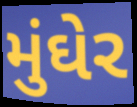
મુંઘેર